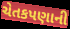
ચેતકપણાની